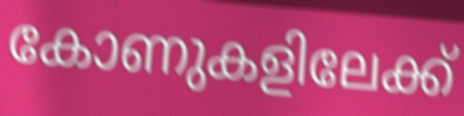
കോണുകളിലേക്ക്